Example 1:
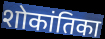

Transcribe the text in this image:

शोकांतिका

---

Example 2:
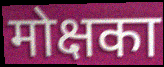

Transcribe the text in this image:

मोक्षका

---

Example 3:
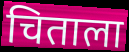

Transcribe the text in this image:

चिताला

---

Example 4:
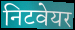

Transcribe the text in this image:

निटवेयर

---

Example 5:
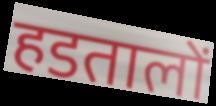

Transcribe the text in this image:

हडतालों